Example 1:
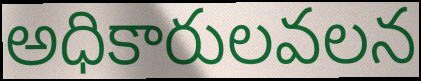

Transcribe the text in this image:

అధికారులవలన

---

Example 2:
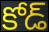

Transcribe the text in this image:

కోడ్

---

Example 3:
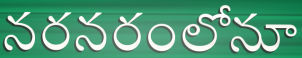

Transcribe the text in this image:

నరనరంలోనూ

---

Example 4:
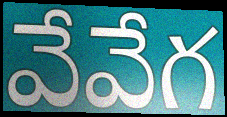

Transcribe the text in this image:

వేవేగ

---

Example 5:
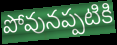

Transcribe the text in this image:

పోవునప్పటికి